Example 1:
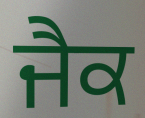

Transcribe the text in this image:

ਜੈਕ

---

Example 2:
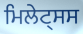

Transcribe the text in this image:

ਮਿਲੇਟ੍ਸਸ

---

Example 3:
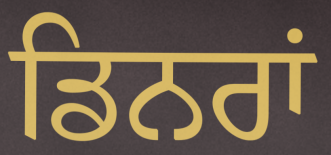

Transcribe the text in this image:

ਡਿਨਰਾਂ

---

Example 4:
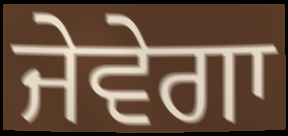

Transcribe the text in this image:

ਜੇਵੇਗਾ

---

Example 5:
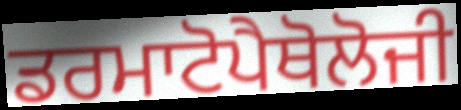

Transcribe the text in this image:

ਡਰਮਾਟੋਪੈਥੋਲੋਜੀ